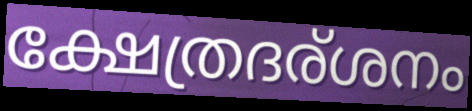
ക്ഷേത്രദര്ശനം